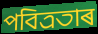
পবিত্ৰতাৰ